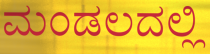
ಮಂಡಲದಲ್ಲಿ